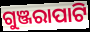
ଗୁଞ୍ଜରାପାଟି